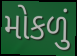
મોકળું